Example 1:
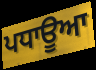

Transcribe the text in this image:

ਪਧਾਊਆ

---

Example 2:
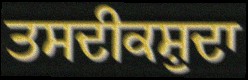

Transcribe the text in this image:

ਤਸਦੀਕਸ਼ੁਦਾ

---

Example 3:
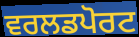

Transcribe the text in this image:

ਵਰਲਡਪੋਰਟ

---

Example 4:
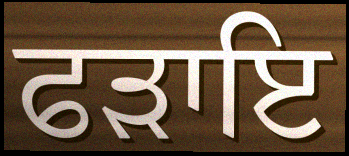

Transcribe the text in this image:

ਫੜਾਇ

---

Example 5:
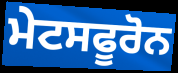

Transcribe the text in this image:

ਮੇਟਸਫੂਰੋਨ